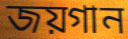
জয়গান